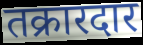
तक्रारदार